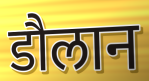
डौलान